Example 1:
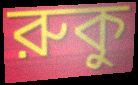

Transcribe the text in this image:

রুকু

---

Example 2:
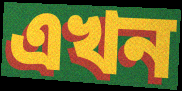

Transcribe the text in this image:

এখন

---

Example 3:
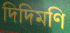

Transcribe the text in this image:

দিদিমণি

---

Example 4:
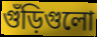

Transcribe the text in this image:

গুঁড়িগুলো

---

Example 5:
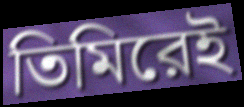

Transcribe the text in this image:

তিমিরেই